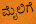
ಮೈಲಿಗೆ